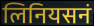
लिनियसनं